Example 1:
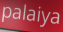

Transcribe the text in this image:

palaiya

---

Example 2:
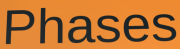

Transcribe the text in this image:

Phases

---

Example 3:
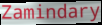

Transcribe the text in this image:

Zamindary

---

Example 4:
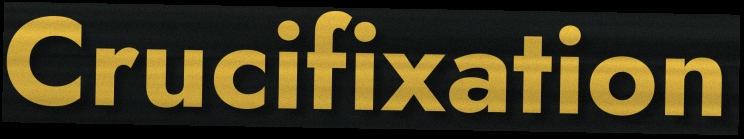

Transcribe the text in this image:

Crucifixation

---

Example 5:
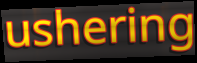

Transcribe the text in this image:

ushering